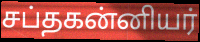
சப்தகன்னியர்